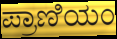
ಪ್ರಾಣಿಯಂ